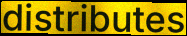
distributes